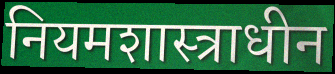
नियमशास्त्राधीन